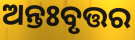
ଅନ୍ତଃବୃତ୍ତର